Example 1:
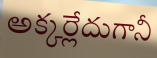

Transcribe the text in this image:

అక్కర్లేదుగానీ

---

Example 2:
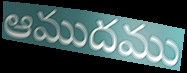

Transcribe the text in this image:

ఆముదము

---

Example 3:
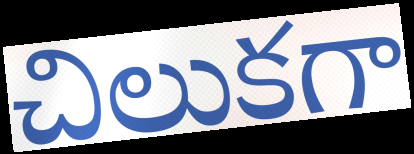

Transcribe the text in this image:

చిలుకగా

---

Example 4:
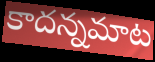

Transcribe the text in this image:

కాదన్నమాట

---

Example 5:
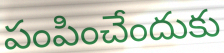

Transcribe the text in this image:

పంపించేందుకు